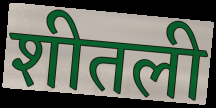
शीतली